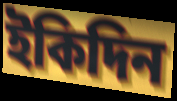
ইকিদিন